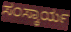
ಸಂಸ್ಕಾರ್ಯ